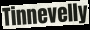
Tinnevelly